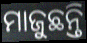
ମାଜୁଛନ୍ତି